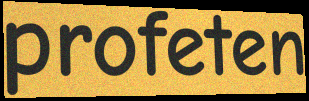
profeten